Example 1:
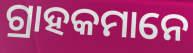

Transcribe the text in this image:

ଗ୍ରାହକମାନେ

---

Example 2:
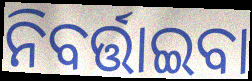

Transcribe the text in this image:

ନିବର୍ତ୍ତାଇବା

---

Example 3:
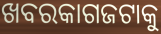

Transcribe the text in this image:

ଖବରକାଗଜଟାକୁ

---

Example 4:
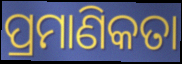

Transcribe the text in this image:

ପ୍ରମାଣିକତା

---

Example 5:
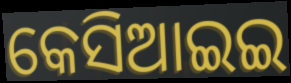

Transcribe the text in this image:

କେସିଆଇଇ